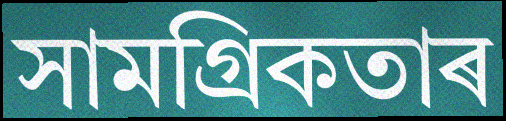
সামগ্ৰিকতাৰ